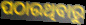
ପଠାଉଥିବାରୁ